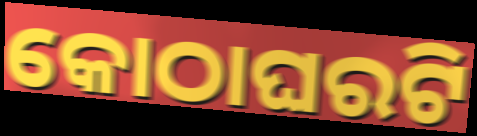
କୋଠାଘରଟି